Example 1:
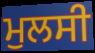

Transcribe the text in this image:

ਮੁਲਸੀ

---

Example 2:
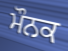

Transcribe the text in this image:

ਮੌਨਕ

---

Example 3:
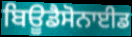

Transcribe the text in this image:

ਬਿਊਡੈਸੋਨਾਈਡ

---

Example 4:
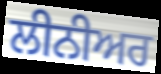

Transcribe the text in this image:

ਲੀਨੀਅਰ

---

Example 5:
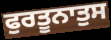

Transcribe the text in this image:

ਫੁਰਤੂਨਾਤੁਸ